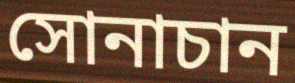
সোনাচান